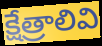
క్షేత్రాలివి